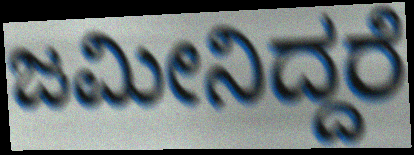
ಜಮೀನಿದ್ದರೆ